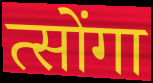
त्सोंगा